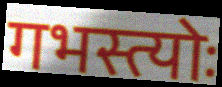
गभस्त्योः